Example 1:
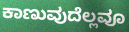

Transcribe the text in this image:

ಕಾಣುವುದೆಲ್ಲವೂ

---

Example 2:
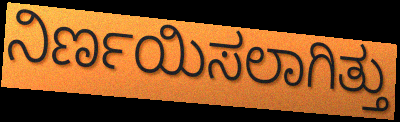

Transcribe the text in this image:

ನಿರ್ಣಯಿಸಲಾಗಿತ್ತು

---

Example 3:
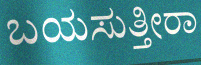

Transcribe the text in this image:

ಬಯಸುತ್ತೀರಾ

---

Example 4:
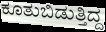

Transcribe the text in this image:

ಕೂತುಬಿಡುತ್ತಿದ್ದ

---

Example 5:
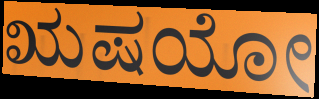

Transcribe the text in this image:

ಋಷಯೋ